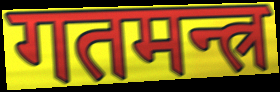
गतमन्त्र